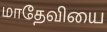
மாதேவியை